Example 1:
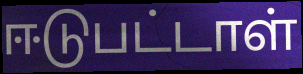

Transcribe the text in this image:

ஈடுபட்டாள்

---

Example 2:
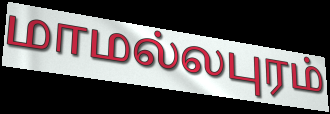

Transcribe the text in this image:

மாமல்லபுரம்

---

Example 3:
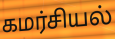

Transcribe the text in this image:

கமர்சியல்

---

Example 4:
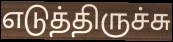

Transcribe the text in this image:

எடுத்திருச்சு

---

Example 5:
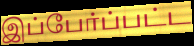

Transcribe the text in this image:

இப்பேர்ப்பட்ட